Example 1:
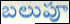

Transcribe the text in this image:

బలుపూ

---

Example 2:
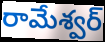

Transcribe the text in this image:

రామేశ్వర్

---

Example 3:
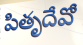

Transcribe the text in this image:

పితృదేవో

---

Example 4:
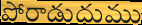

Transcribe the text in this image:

పోరాడుదుము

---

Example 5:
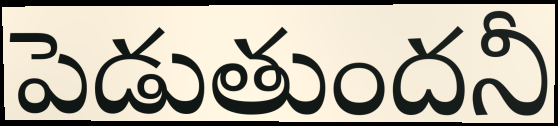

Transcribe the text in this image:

పెడుతుందనీ